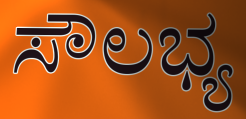
ಸೌಲಭ್ಯ